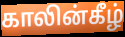
காலின்கீழ்